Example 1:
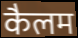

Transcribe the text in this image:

कैलम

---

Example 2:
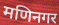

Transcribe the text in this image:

मणिनगर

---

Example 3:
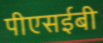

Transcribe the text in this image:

पीएसईबी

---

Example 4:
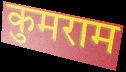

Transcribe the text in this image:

कुमराम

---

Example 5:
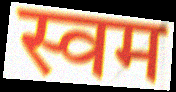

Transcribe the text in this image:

स्वम